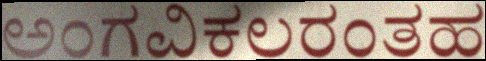
ಅಂಗವಿಕಲರಂತಹ